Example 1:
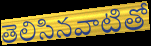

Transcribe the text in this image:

తెలిసినవాటితో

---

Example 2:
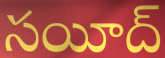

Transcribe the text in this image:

సయీద్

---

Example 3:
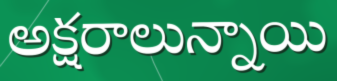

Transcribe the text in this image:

అక్షరాలున్నాయి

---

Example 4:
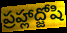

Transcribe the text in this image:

ప్రహ్లాద్జోషి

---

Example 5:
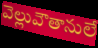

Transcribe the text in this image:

వెల్లువౌతానులే